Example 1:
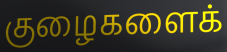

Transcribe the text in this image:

குழைகளைக்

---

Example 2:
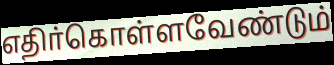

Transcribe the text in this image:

எதிர்கொள்ளவேண்டும்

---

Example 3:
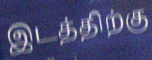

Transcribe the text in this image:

இடத்திற்கு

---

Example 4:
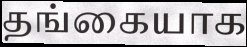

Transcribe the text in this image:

தங்கையாக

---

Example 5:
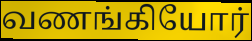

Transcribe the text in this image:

வணங்கியோர்